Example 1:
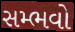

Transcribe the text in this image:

સમ્ભવો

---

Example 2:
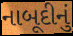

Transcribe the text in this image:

નાબૂદીનું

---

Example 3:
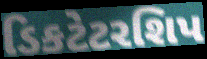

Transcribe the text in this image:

ડિકટેટરશિપ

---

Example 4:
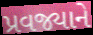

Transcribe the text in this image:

પ્રવજ્યાને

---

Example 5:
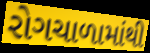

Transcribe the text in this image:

રોગચાળામાંથી